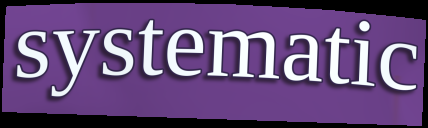
systematic